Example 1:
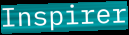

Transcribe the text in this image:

Inspirer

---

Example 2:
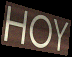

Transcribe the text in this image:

HOY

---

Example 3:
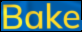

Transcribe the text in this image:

Bake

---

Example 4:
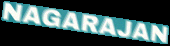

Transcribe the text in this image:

NAGARAJAN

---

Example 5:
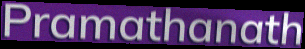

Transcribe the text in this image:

Pramathanath